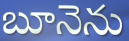
బూనెను